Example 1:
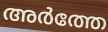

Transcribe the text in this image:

അർത്തേ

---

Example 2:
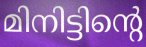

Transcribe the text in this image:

മിനിട്ടിന്റെ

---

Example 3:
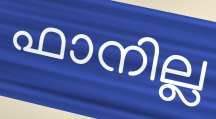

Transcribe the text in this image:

ഫാനില്ല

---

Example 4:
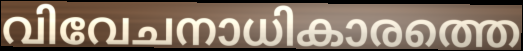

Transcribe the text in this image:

വിവേചനാധികാരത്തെ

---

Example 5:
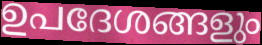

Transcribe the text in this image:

ഉപദേശങ്ങളും